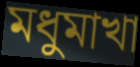
মধুমাখা